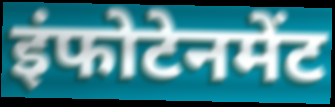
इंफोटेनमेंट